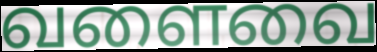
வளைவை